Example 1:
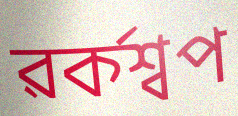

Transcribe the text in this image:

ৱৰ্কশ্বপ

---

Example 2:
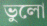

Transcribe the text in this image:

ভুলো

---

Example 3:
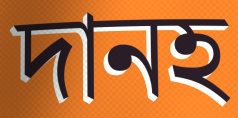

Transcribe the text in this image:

দানহ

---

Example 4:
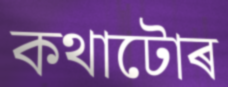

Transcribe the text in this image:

কথাটোৰ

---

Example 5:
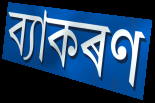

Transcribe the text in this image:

ব্যাকৰণ